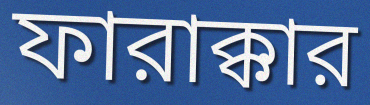
ফারাক্কার